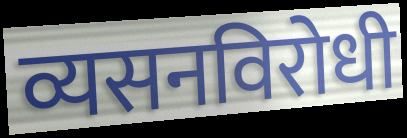
व्यसनविरोधी